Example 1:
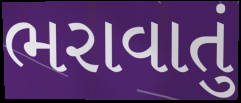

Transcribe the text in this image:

ભરાવાતું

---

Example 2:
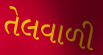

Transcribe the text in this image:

તેલવાળી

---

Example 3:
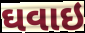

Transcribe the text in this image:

ઘવાઇ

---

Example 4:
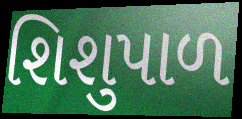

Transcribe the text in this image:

શિશુપાળ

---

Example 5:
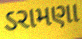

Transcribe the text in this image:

ડરામણા